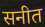
सनीत